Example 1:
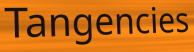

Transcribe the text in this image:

Tangencies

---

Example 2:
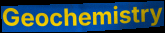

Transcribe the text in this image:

Geochemistry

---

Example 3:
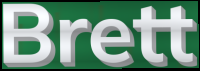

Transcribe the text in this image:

Brett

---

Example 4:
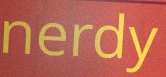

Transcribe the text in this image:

nerdy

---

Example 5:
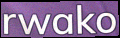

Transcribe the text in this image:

rwako